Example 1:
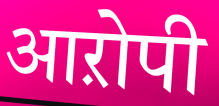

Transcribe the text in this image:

आऱोपी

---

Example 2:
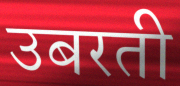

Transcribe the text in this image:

उबरती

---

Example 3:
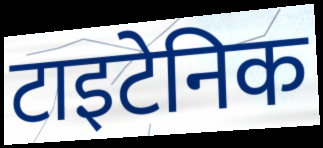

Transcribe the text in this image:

टाइटेनिक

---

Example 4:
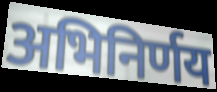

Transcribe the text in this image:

अभिनिर्णय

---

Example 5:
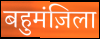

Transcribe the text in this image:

बहुमंज़िला